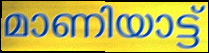
മാണിയാട്ട്